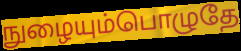
நுழையும்பொழுதே